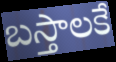
బస్తాలకే